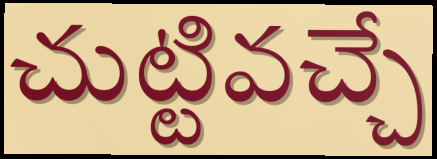
చుట్టివచ్చే